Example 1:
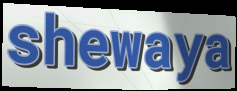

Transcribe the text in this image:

shewaya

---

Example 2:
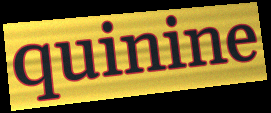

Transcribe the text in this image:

quinine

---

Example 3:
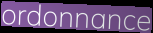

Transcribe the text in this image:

ordonnance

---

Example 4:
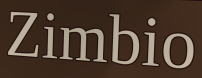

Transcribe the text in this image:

Zimbio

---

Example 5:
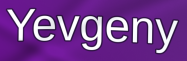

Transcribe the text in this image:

Yevgeny